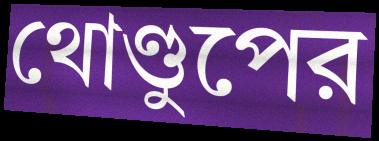
থোণ্ডুপের